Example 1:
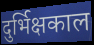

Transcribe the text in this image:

दुर्भिक्षकाल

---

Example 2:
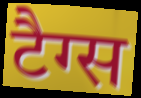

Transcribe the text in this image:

टैग्स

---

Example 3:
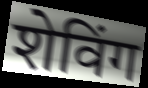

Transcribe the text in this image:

शेविंग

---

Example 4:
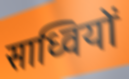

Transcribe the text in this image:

साध्वियों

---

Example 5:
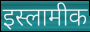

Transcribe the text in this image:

इस्लामीक